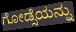
ಗೋಡ್ಸೆಯನ್ನು